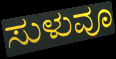
ಸುಳುವೂ